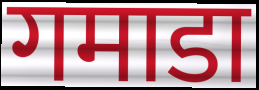
गमाडा